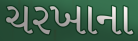
ચરખાના